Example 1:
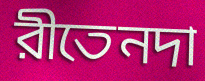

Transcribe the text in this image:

রীতেনদা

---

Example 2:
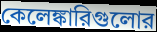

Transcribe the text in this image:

কেলেঙ্কারিগুলোর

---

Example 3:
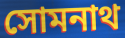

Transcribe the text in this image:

সোমনাথ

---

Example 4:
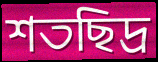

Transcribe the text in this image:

শতছিদ্র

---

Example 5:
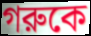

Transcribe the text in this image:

গরুকে